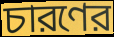
চারণের